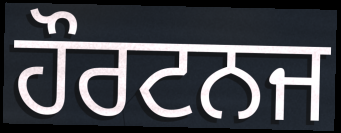
ਹੌਰਟਨਜ